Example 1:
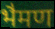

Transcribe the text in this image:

भैमण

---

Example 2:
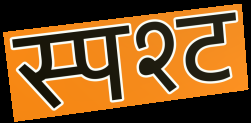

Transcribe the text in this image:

स्पश्ट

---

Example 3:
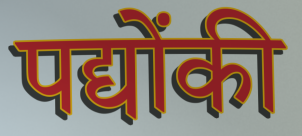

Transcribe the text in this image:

पद्योंकी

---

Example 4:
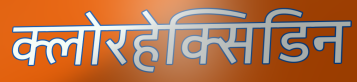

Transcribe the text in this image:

क्लोरहेक्सिडिन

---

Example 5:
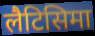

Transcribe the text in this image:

लैटिसिमा